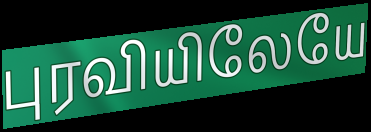
புரவியிலேயே